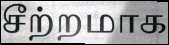
சீற்றமாக